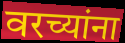
वरच्यांना